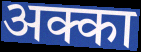
अक्का